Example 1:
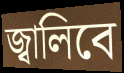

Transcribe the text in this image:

জ্বালিবে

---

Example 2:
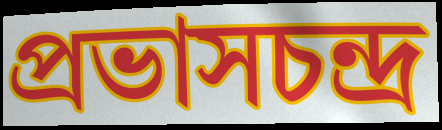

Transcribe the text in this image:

প্রভাসচন্দ্র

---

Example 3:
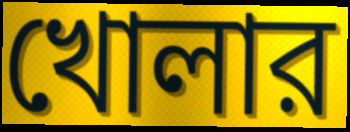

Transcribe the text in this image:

খোলার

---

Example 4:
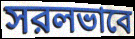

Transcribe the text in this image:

সরলভাবে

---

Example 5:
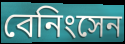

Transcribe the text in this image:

বেনিংসেন